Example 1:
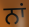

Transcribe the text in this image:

ਨਾਂ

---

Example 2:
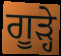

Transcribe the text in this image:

ਗੂੜ੍ਹੇ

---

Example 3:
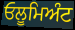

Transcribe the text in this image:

ਓਲੂਮਿਅੰਟ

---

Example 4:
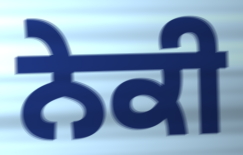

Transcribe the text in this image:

ਨੇਕੀ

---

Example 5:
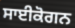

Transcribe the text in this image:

ਸਾਈਕੋਗਨ